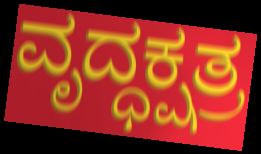
ವೃದ್ಧಕ್ಷತ್ರ